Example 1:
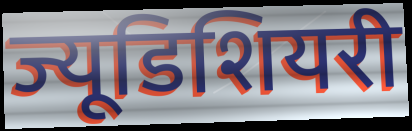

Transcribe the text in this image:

ज्यूडिशियरी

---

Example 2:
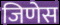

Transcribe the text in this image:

जिणेस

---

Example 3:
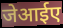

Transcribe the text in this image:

जेआईए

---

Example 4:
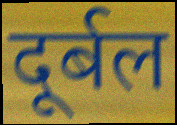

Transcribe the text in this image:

दूर्बल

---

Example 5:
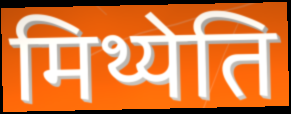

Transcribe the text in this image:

मिथ्येति